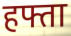
हफ्ता